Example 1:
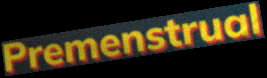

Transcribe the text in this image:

Premenstrual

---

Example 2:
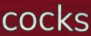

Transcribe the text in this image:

cocks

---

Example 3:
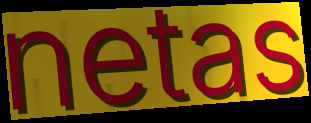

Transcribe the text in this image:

netas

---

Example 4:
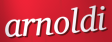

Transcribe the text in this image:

arnoldi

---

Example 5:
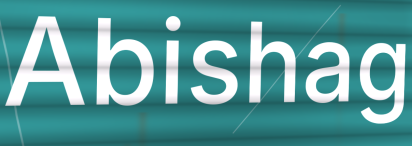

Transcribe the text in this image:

Abishag